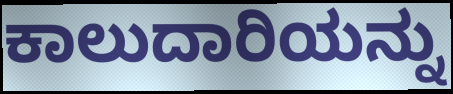
ಕಾಲುದಾರಿಯನ್ನು